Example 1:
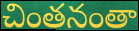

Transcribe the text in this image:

చింతనంతా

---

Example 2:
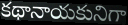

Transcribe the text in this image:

కథానాయకునిగా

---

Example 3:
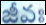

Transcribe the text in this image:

జీవః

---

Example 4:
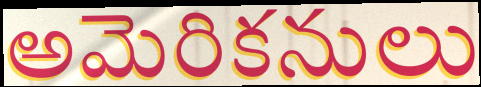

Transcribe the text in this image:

అమెరికనులు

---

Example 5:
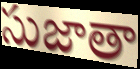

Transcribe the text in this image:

సుజాతా